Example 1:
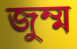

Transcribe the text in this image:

জুম্ম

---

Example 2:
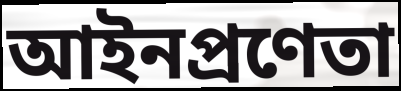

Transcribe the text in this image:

আইনপ্রণেতা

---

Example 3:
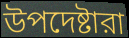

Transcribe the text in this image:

উপদেষ্টারা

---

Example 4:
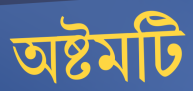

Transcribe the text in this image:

অষ্টমটি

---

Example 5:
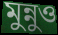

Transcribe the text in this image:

মুন্নুও